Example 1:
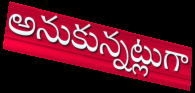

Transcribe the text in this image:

అనుకున్నట్లుగా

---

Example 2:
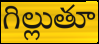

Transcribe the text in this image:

గిల్లుతూ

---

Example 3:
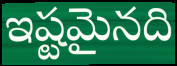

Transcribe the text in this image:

ఇష్టమైనది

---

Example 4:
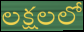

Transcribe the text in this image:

లక్షలలో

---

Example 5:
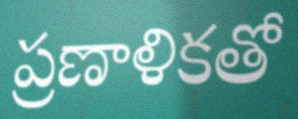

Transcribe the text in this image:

ప్రణాళికతో